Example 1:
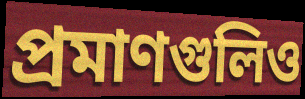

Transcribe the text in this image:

প্রমাণগুলিও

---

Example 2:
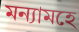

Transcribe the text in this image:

মন্যামহে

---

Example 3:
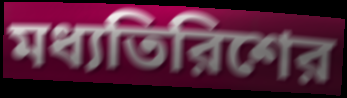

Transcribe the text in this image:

মধ্যতিরিশের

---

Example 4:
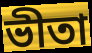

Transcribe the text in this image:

ভীতা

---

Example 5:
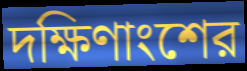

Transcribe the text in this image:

দক্ষিণাংশের